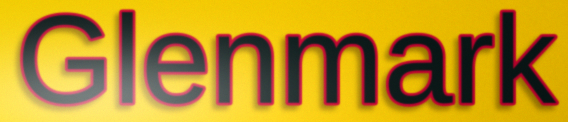
Glenmark